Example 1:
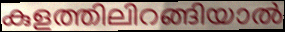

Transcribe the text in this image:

കുളത്തിലിറങ്ങിയാൽ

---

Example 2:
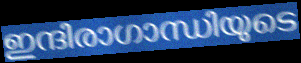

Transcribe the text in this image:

ഇന്ദിരാഗാന്ധിയുടെ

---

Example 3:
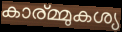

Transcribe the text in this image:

കാര്മ്മുകശ്യ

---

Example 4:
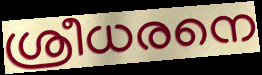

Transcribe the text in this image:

ശ്രീധരനെ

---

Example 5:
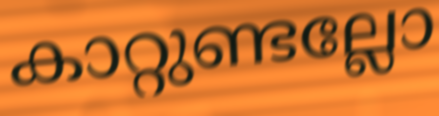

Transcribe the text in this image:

കാറ്റുണ്ടല്ലോ